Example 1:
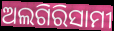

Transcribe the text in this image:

ଅଲଗିରିସାମୀ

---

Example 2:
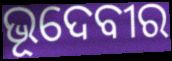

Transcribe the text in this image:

ଭୂଦେବୀର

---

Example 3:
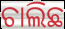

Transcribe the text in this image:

ଚାଲିଛ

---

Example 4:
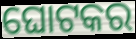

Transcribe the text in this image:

ଘୋଟକର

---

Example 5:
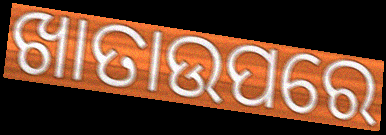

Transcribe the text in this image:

ଖାତାଉପରେ